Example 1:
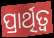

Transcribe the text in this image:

ପ୍ରାର୍ଥିତ୍ୱ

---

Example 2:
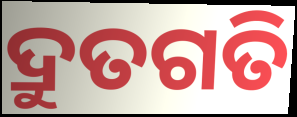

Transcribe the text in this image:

ଦ୍ରୁତଗତି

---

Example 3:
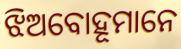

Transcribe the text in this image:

ଝିଅବୋହୂମାନେ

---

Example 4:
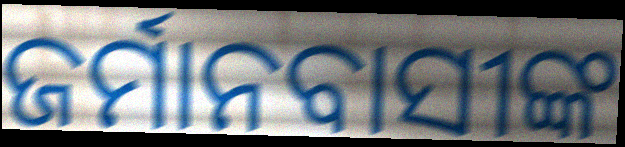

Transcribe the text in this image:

ଜର୍ମାନବାସୀଙ୍କ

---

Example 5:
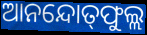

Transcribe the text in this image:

ଆନନ୍ଦୋତ୍‍ଫୁଲ୍ଲ